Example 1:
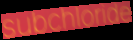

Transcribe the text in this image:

subchloride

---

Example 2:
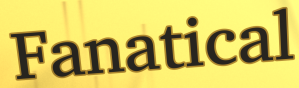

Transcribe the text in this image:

Fanatical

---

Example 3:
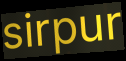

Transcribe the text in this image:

sirpur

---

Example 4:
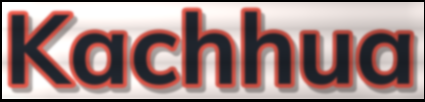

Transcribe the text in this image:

Kachhua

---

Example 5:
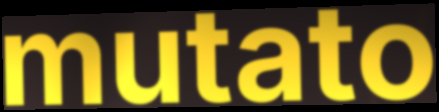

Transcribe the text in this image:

mutato